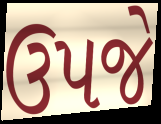
ઉપજે